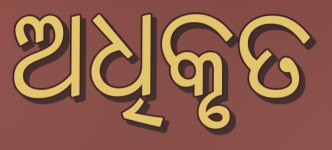
ଅଧିକୃତ